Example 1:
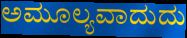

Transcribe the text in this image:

ಅಮೂಲ್ಯವಾದುದು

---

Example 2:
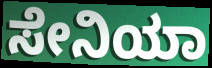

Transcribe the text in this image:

ಸೇನಿಯಾ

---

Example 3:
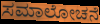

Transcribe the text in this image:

ಸಮಾಲೋಚನೆ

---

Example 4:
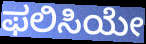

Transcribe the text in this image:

ಫಲಿಸಿಯೇ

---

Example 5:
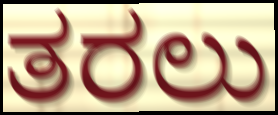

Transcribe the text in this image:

ತರಲು